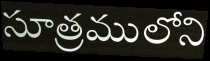
సూత్రములోని